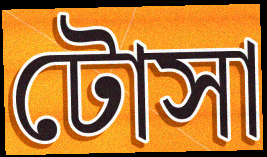
টোসা